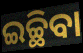
ଇଚ୍ଛିବା